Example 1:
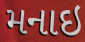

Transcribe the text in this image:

મનાઇ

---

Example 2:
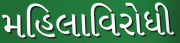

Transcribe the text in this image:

મહિલાવિરોધી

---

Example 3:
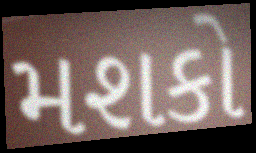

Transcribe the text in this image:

મશકો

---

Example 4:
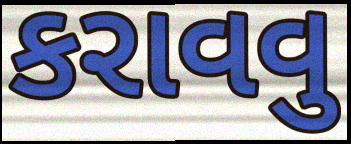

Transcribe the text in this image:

કરાવવુ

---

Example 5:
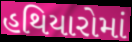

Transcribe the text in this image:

હથિયારોમાં